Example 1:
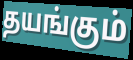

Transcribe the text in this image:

தயங்கும்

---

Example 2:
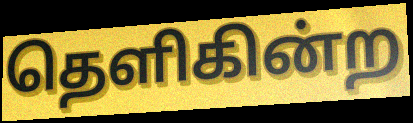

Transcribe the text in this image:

தெளிகின்ற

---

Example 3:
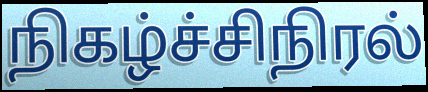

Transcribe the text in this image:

நிகழ்ச்சிநிரல்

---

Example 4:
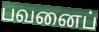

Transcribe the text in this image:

பவனைப்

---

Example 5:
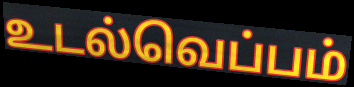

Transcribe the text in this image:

உடல்வெப்பம்